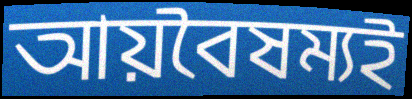
আয়বৈষম্যই